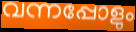
വന്നപ്പോളും